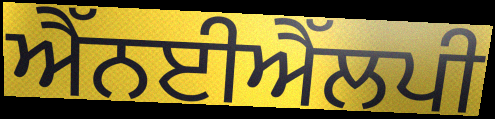
ਐੱਨਈਐੱਲਪੀ